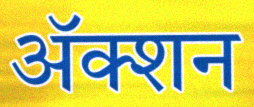
ॲक्शन